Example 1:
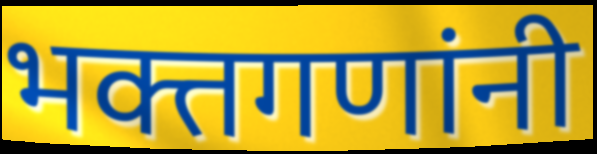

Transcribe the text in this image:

भक्तगणांनी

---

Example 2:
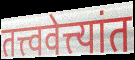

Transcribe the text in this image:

तत्त्ववेत्त्यांत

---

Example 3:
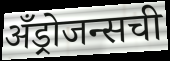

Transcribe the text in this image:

अँड्रोजन्सची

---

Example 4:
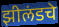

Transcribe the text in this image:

झीलंडचे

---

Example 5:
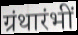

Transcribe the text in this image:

ग्रंथारंभीं